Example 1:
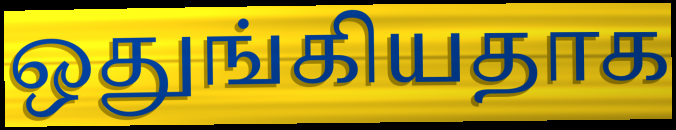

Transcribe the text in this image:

ஒதுங்கியதாக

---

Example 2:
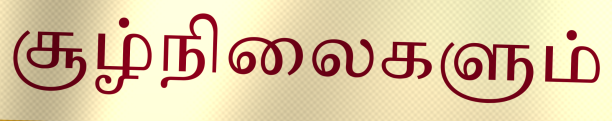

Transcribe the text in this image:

சூழ்நிலைகளும்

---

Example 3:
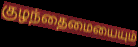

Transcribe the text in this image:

குழந்தைமையையும்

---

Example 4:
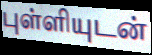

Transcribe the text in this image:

புள்ளியுடன்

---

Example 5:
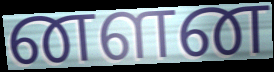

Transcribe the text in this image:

னளன